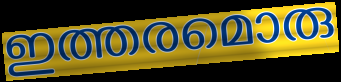
ഇത്തരമൊരു